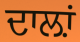
ਦਾਲ਼ਾਂ